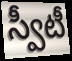
స్వీటీ